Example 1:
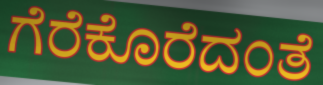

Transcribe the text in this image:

ಗೆರೆಕೊರೆದಂತೆ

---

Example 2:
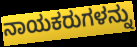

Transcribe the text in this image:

ನಾಯಕರುಗಳನ್ನು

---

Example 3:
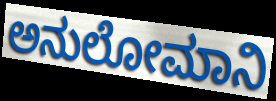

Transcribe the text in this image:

ಅನುಲೋಮಾನಿ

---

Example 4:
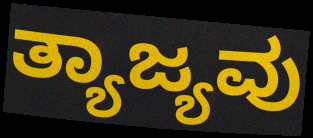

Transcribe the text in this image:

ತ್ಯಾಜ್ಯವು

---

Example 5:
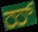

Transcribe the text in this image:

ಹ್